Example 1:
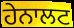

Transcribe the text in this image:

ਹੇਨਾਲਟ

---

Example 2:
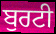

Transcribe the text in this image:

ਬੁਰਟੀ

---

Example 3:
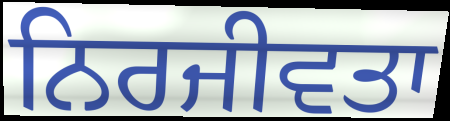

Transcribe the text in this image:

ਨਿਰਜੀਵਤਾ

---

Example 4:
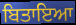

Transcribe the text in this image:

ਬਿਤਾਇਆ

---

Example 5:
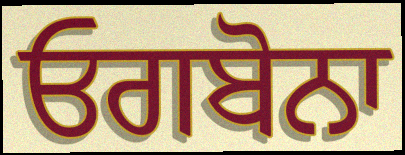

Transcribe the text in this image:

ਓਗਬੋਨਾ